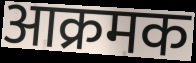
आक्रमक